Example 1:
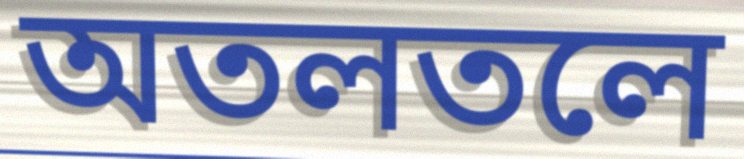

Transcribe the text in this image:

অতলতলে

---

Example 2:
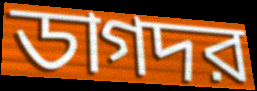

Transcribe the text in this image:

ডাগদর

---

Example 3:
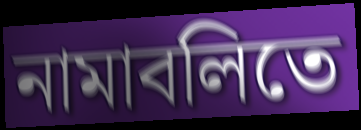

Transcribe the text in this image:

নামাবলিতে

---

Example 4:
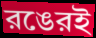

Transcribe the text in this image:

রঙেরই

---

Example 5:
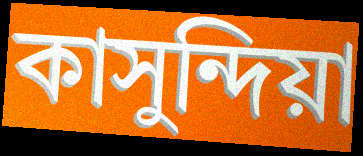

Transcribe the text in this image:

কাসুন্দিয়া